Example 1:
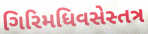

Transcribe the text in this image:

ગિરિમધિવસેસ્તત્ર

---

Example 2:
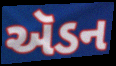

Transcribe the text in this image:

ઍડન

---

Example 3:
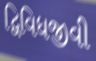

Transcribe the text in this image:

દ્વિવિધજીવી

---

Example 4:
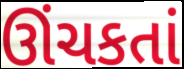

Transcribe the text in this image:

ઊંચકતાં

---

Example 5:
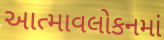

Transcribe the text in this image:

આત્માવલોકનમાં